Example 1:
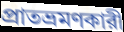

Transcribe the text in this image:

প্রাতভ্রমণকারী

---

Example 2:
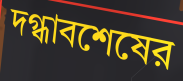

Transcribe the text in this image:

দগ্ধাবশেষের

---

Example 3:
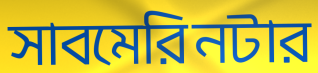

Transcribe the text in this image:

সাবমেরিনটার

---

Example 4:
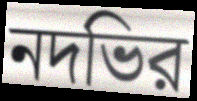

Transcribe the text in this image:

নদভির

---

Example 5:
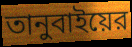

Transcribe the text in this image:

তানুবাইয়ের